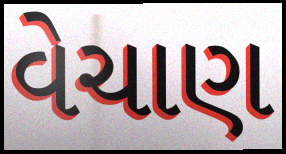
વેચાણ